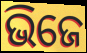
ଭିଜେ